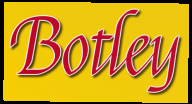
Botley